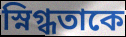
স্নিগ্ধতাকে